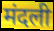
मंदली